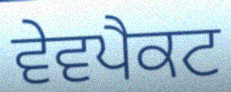
ਵੇਵਪੈਕਟ